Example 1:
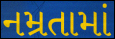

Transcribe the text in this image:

નમ્રતામાં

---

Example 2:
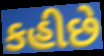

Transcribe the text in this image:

કહીછે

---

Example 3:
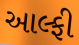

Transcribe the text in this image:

આલ્ફી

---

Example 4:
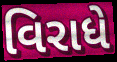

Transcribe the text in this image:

વિરાધે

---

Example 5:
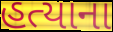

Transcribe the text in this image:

હત્યાના